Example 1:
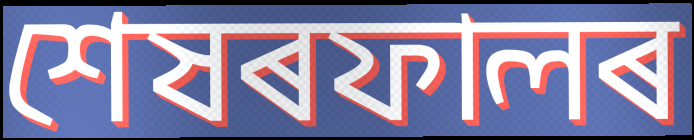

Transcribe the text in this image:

শেষৰফালৰ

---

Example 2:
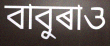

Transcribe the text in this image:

বাবুৰাও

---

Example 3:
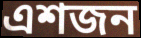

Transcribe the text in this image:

এশজন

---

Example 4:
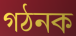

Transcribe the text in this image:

গঠনক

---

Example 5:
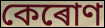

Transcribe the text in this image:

কেৰোণ